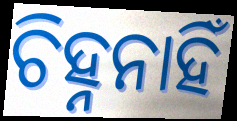
ଚିହ୍ନନାହିଁ